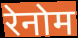
रेनोम